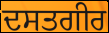
ਦਸਤਗੀਰ